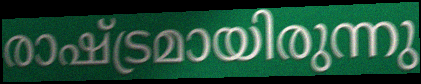
രാഷ്ട്രമായിരുന്നു